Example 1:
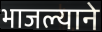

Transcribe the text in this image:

भाजल्याने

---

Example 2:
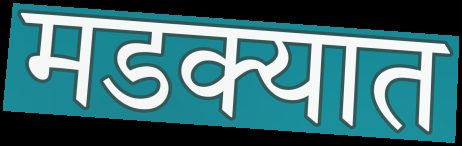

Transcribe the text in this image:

मडक्यात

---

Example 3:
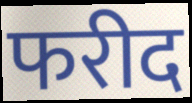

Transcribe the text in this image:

फरीद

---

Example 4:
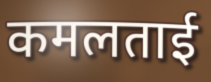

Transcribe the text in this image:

कमलताई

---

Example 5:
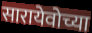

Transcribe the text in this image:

सारायेवोच्या